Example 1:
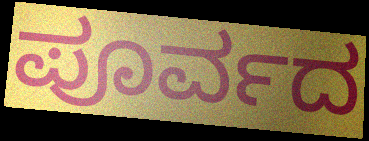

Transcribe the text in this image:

ಪೂರ್ವದ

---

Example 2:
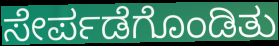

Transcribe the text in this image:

ಸೇರ್ಪಡೆಗೊಂಡಿತು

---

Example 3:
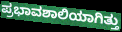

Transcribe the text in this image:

ಪ್ರಭಾವಶಾಲಿಯಾಗಿತ್ತು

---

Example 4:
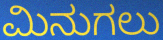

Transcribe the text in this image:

ಮಿನುಗಲು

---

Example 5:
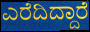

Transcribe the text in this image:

ಎರೆದಿದ್ದಾರೆ